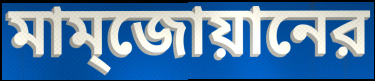
মাম্জোয়ানের